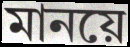
মানয়ে